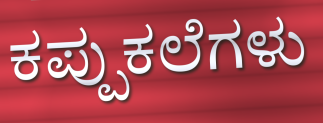
ಕಪ್ಪುಕಲೆಗಳು